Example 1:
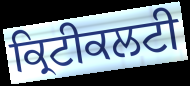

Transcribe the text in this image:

ਕ੍ਰਿਟੀਕਲਟੀ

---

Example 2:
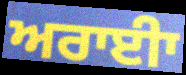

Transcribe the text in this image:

ਅਰਾਈਾ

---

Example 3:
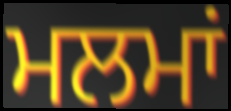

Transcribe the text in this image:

ਮਲਮਾਂ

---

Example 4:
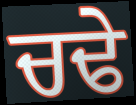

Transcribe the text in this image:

ਚਢੇ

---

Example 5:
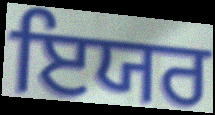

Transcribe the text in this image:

ਇਯਰ